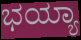
ಭಯ್ಯಾ